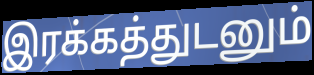
இரக்கத்துடனும்